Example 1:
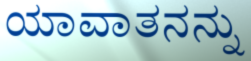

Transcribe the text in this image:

ಯಾವಾತನನ್ನು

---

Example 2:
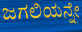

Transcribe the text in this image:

ಜಗಲಿಯನ್ನೇ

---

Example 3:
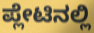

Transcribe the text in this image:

ಪ್ಲೇಟಿನಲ್ಲಿ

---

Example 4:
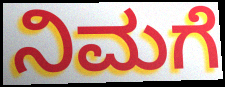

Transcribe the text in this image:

ನಿಮಗೆ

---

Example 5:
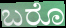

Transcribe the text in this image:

ಬರೊ